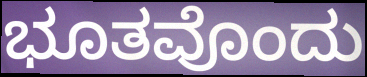
ಭೂತವೊಂದು